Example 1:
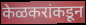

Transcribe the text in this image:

केळकरांकडून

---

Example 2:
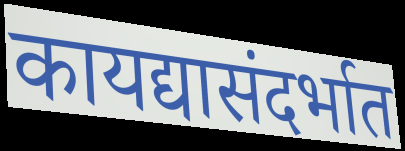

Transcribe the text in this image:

कायद्यासंदर्भात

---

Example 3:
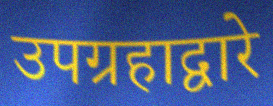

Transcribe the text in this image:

उपग्रहाद्वारे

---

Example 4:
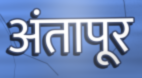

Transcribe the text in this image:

अंतापूर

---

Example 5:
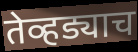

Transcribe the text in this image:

तेव्हड्याच